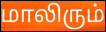
மாலிரும்